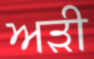
ਅੜੀ